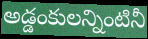
అడ్డంకులన్నింటినీ